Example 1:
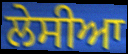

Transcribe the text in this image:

ਲੇਸੀਆ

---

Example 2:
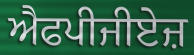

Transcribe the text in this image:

ਐਫਪੀਜੀਏਜ਼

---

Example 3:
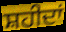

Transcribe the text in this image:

ਸ਼ਹੀਦਾਂ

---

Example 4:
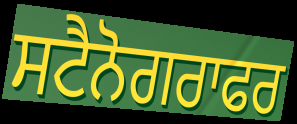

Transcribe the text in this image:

ਸਟੈਨੋਗਰਾਫਰ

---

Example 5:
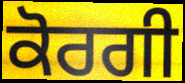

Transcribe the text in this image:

ਕੋਰਗੀ